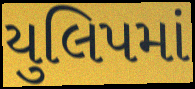
યુલિપમાં